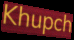
Khupch